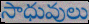
సాధువులు